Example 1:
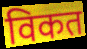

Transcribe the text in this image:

विकत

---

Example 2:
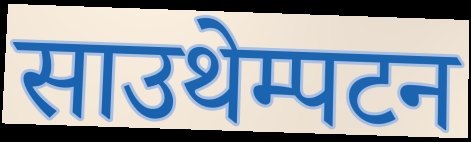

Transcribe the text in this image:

साउथेम्पटन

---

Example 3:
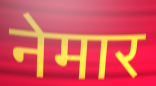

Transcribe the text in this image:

नेमार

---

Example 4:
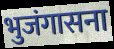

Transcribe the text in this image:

भुजंगासना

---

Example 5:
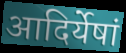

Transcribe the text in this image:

आदिर्येषां